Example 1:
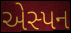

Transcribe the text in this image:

એસ્પન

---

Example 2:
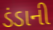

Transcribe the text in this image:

ડંડાની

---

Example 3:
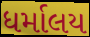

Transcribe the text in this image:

ધર્માલય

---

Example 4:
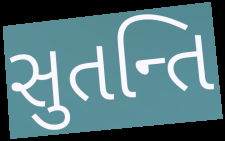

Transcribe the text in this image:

સુતન્તિ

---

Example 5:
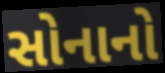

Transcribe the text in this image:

સોનાનો